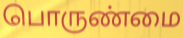
பொருண்மை